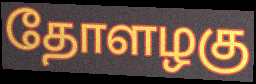
தோளழகு